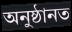
অনুষ্ঠানত